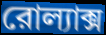
রোল্যাক্স